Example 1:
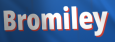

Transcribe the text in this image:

Bromiley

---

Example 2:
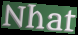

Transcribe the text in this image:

Nhat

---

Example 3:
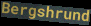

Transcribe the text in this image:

Bergshrund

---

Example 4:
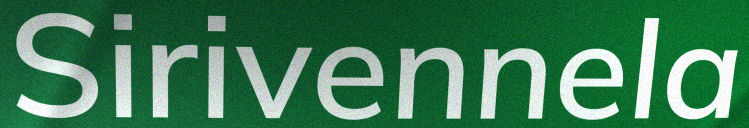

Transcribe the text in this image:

Sirivennela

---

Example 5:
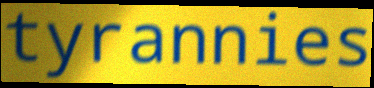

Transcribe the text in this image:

tyrannies